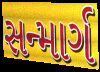
સન્માર્ગ